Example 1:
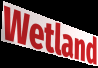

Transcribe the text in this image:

Wetland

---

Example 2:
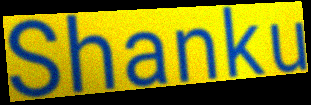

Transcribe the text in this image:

Shanku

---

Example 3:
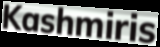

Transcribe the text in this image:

Kashmiris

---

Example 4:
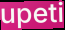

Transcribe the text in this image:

upeti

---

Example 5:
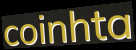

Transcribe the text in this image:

coinhta